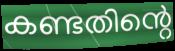
കണ്ടതിന്റെ